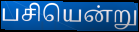
பசியென்று